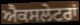
ਐਕਸਲੇਟਰਾਂ